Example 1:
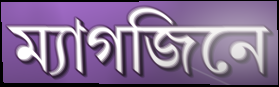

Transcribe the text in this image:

ম্যাগজিনে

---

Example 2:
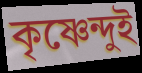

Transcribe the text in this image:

কৃষ্ণেন্দুই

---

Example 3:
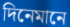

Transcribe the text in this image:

দিনেমানে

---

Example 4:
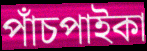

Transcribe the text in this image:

পাঁচপাইকা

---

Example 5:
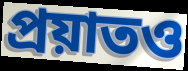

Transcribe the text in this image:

প্রয়াতও